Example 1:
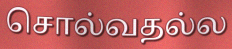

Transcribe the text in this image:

சொல்வதல்ல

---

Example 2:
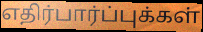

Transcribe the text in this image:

எதிர்பார்ப்புக்கள்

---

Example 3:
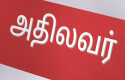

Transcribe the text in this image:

அதிலவர்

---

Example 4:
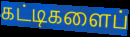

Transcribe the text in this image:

கட்டிகளைப்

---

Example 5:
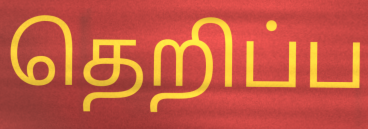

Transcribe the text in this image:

தெறிப்ப